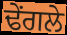
ਢੇਂਗਲੇ